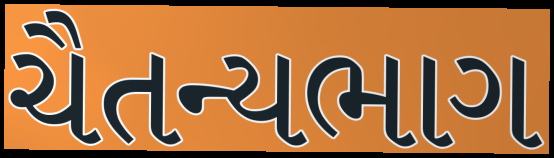
ચૈતન્યભાગ